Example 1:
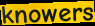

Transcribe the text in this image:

knowers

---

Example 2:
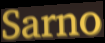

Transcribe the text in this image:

Sarno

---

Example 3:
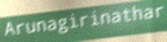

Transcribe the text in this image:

Arunagirinathar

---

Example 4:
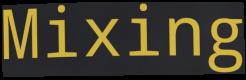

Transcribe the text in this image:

Mixing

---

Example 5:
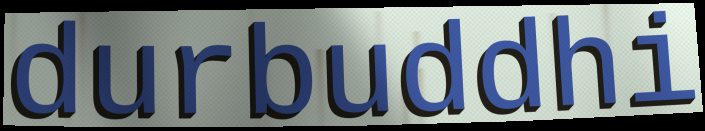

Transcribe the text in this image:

durbuddhi